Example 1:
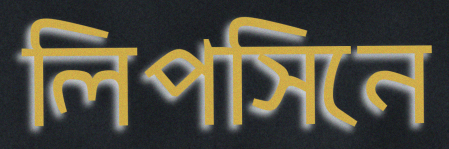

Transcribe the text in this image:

লিপসিনে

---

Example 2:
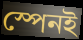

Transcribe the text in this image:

স্পেনই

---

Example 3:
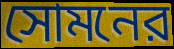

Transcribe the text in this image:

সোমনের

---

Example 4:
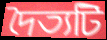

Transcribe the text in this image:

দৈত্যটি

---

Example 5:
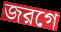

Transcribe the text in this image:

জরগে